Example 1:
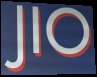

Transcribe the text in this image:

JIO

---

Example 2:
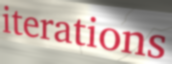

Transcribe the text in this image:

iterations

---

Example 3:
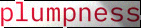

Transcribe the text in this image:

plumpness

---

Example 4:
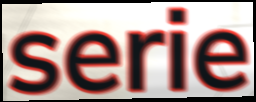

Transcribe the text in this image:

serie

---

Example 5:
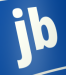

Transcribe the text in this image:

jb